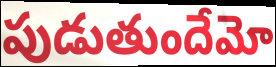
పుడుతుందేమో